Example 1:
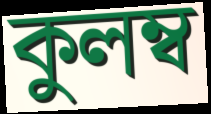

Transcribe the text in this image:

কুলম্ব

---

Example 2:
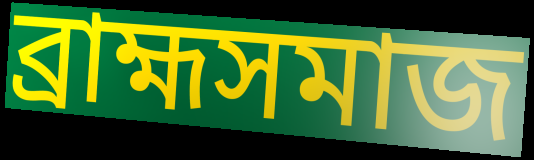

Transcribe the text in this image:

ব্রাহ্মসমাজ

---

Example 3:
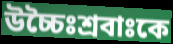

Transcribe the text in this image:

উচ্চৈঃশ্রবাঃকে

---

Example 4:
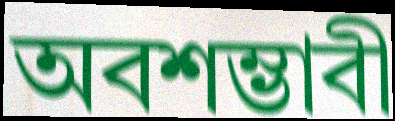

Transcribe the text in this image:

অবশম্ভাবী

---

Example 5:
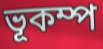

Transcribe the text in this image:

ভূকম্প